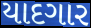
યાદગાર